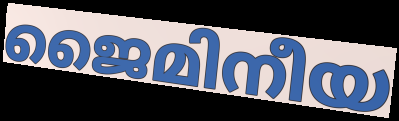
ജൈമിനീയ